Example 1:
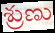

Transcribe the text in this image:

శ్రుణు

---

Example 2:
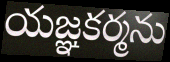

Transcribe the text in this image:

యజ్ఞకర్మను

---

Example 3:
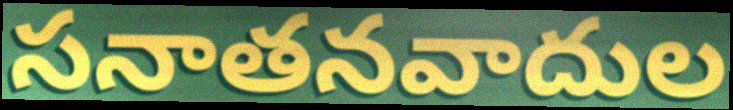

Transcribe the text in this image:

సనాతనవాదుల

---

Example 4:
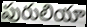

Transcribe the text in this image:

పురులియా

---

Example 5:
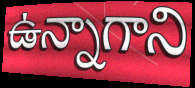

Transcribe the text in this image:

ఉన్నాగాని